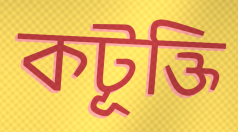
কটূক্তি